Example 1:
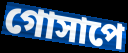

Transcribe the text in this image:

গোসাপে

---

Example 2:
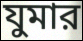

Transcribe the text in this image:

যুমার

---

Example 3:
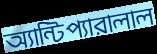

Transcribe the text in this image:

অ্যান্টিপ্যারালাল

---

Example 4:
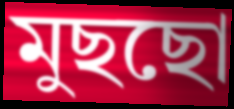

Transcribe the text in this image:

মুছছো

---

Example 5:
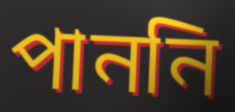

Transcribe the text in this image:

পাননি